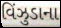
વિંઝુડાના